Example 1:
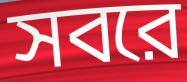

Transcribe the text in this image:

সবরে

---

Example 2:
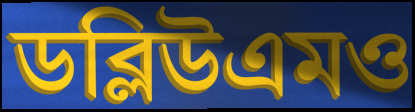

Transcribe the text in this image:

ডব্লিউএমও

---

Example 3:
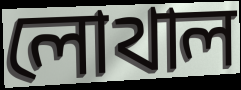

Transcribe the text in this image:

লোথাল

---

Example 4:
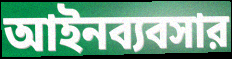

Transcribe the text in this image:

আইনব্যবসার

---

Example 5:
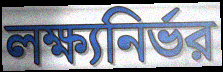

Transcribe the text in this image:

লক্ষ্যনির্ভর